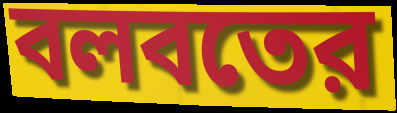
বলবতের